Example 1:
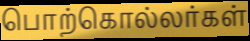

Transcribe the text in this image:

பொற்கொல்லர்கள்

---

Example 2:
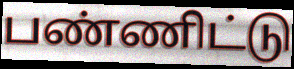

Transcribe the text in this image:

பண்ணிட்டு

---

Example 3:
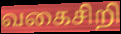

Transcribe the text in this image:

வகைசிறி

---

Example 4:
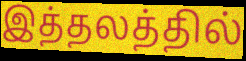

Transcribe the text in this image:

இத்தலத்தில்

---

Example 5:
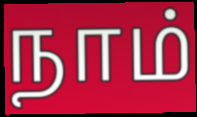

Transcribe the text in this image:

நாம்